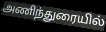
அணிந்துரையில்